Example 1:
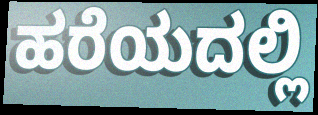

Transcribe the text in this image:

ಹರೆಯದಲ್ಲಿ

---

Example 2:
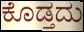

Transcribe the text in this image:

ಕೊಡ್ತದು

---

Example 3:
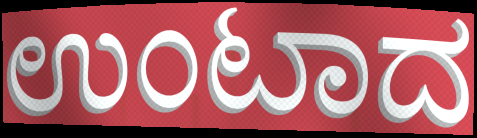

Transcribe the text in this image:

ಉಂಟಾದ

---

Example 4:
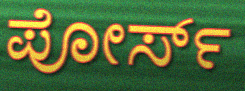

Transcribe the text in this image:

ಪೋರ್ಸ್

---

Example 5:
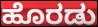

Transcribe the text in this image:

ಹೊರಡು